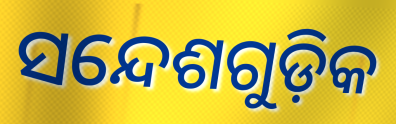
ସନ୍ଦେଶଗୁଡ଼ିକ